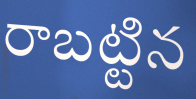
రాబట్టిన